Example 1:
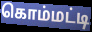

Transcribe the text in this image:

கொம்மட்டி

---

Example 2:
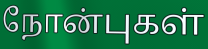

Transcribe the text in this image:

நோன்புகள்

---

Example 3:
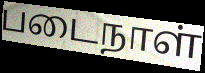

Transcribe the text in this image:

படைநாள்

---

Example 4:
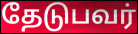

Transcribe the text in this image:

தேடுபவர்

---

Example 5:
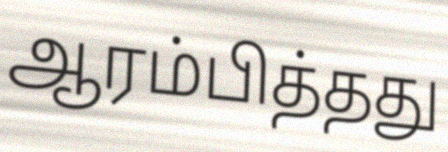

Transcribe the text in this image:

ஆரம்பித்தது